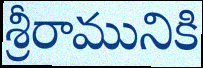
శ్రీరామునికి